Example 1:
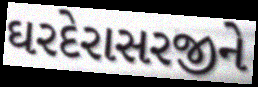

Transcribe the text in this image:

ઘરદેરાસરજીને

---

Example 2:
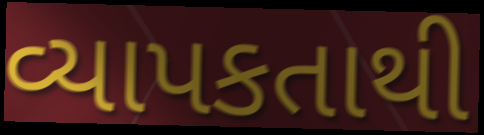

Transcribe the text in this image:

વ્યાપકતાથી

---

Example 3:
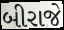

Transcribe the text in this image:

બીરાજે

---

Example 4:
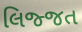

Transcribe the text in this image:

લિજ્જત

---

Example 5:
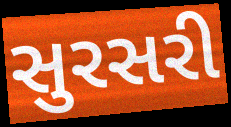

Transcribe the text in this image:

સુરસરી